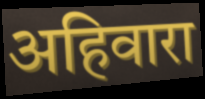
अहिवारा